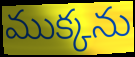
ముక్కను